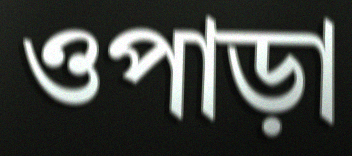
ওপাড়া